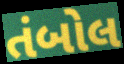
તંબોલ